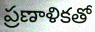
ప్రణాళికతో